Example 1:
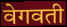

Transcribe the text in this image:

वेगवती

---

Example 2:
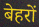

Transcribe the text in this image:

बेहरों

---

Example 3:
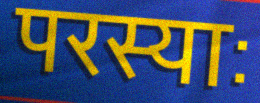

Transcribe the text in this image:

परस्याः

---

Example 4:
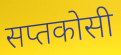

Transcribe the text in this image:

सप्तकोसी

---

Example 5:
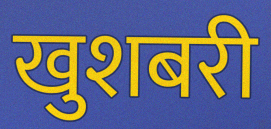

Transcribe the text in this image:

खुशबरी